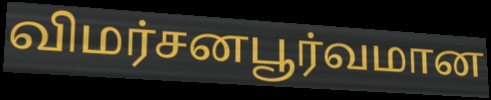
விமர்சனபூர்வமான